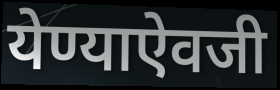
येण्याऐवजी